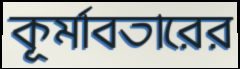
কূর্মাবতারের